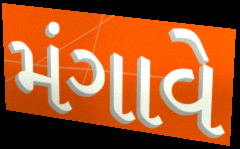
મંગાવે